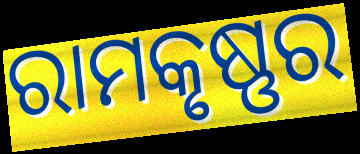
ରାମକୃଷ୍ଣର